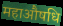
महाऔषधि